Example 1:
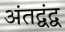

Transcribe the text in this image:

अंतद्वंद्व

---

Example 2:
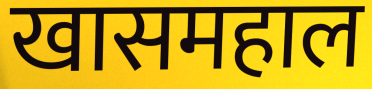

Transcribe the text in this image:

खासमहाल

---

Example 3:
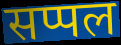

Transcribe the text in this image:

सप्पल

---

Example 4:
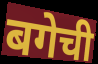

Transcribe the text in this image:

बगेची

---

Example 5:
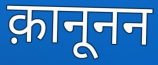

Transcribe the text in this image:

क़ानूनन